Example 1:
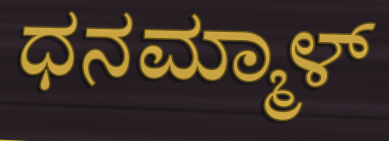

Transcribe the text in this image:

ಧನಮ್ಮಾಳ್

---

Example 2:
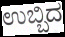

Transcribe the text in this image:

ಉಬ್ಬಿದ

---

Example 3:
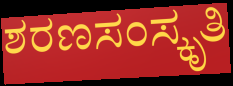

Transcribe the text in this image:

ಶರಣಸಂಸ್ಕೃತಿ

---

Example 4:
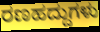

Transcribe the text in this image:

ರಣಹದ್ದುಗಳು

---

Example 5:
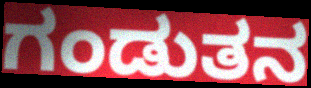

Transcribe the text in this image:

ಗಂಡುತನ